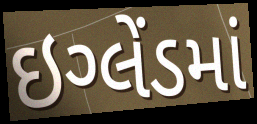
ઇગ્લેંડમાં